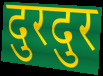
दुरदुर